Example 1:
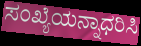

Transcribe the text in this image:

ಸಂಖ್ಯೆಯನ್ನಾಧರಿಸಿ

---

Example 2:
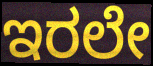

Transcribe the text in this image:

ಇರಲೇ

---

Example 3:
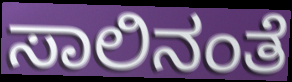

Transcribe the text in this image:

ಸಾಲಿನಂತೆ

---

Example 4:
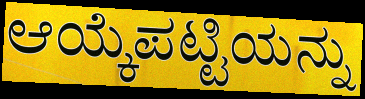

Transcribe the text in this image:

ಆಯ್ಕೆಪಟ್ಟಿಯನ್ನು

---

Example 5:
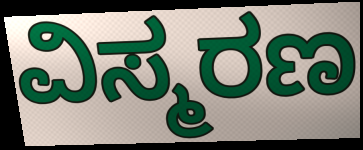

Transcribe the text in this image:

ವಿಸ್ಮರಣ